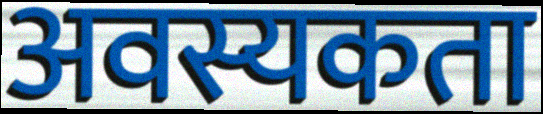
अवस्यकता